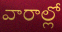
వారాల్లో